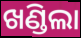
ଖଣ୍ଡିଲା